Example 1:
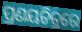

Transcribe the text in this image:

ପ୍ରଣୟଚିତ୍ରରେ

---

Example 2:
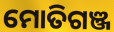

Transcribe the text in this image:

ମୋତିଗଞ୍ଜ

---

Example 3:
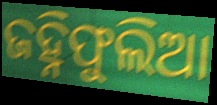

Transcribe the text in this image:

ଜହ୍ନିଫୁଲିଆ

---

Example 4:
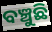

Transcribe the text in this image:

ବଞ୍ଚୁଛି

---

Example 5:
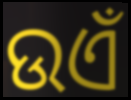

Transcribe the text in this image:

ଉଏଁ